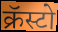
क्रॅस्टो